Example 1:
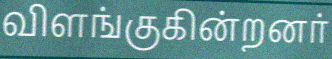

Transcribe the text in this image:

விளங்குகின்றனர்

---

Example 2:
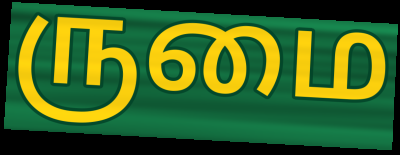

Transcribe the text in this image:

ருமை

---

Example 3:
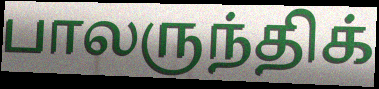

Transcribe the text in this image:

பாலருந்திக்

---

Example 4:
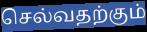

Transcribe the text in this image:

செல்வதற்கும்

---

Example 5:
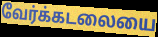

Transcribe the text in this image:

வேர்க்கடலையை